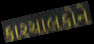
કારચાલકોને